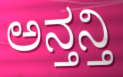
ಅನ್ತನ್ತಿ